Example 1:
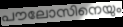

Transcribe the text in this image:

പൗലോസിനെയും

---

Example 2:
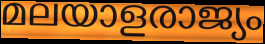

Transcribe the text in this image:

മലയാളരാജ്യം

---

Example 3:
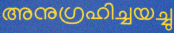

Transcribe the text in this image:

അനുഗ്രഹിച്ചയച്ചു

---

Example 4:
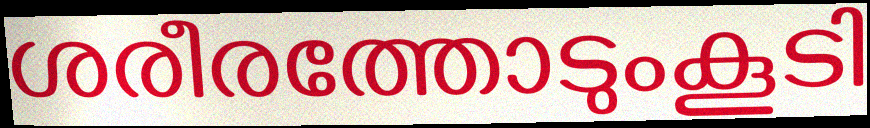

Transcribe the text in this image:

ശരീരത്തോടുംകൂടി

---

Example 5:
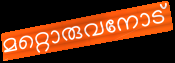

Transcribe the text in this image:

മറ്റൊരുവനോട്